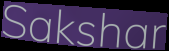
Sakshar